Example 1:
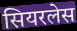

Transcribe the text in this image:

सियरलेस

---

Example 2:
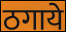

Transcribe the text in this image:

ठगाये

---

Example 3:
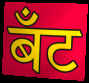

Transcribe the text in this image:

बँट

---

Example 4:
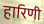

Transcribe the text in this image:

हारिणी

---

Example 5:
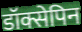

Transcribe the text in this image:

डॉक्सेपिन